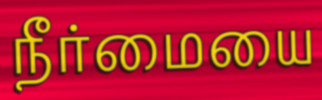
நீர்மையை